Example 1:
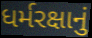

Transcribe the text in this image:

ધર્મરક્ષાનું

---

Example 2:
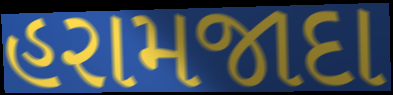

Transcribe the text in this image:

હરામજાદા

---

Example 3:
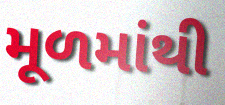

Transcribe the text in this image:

મૂળમાંથી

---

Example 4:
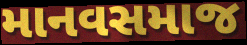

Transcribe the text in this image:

માનવસમાજ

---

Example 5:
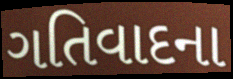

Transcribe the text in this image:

ગતિવાદના